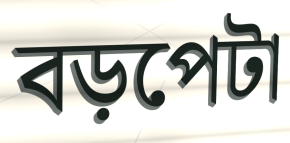
বড়পেটা